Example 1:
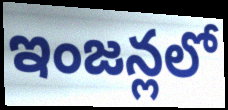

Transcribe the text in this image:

ఇంజన్లలో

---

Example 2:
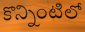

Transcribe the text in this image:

కొన్నింటిలో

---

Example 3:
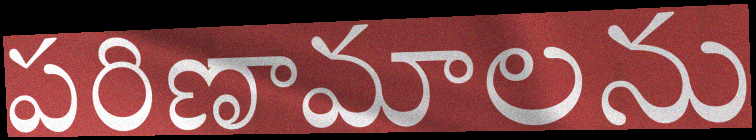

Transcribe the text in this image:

పరిణామాలను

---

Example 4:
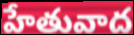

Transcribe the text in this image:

హేతువాద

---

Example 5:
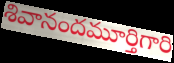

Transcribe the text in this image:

శివానందమూర్తిగారి